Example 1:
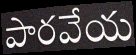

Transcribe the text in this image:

పారవేయ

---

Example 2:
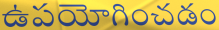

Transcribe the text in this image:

ఉపయోగించడం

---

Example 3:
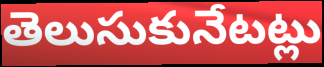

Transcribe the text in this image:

తెలుసుకునేటట్లు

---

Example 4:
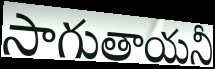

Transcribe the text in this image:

సాగుతాయనీ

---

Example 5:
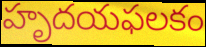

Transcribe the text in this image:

హృదయఫలకం